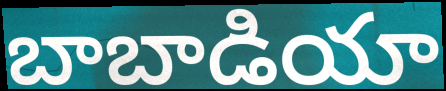
బాబాడియా